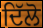
ਦਿੱਲੋ